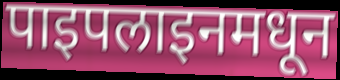
पाइपलाइनमधून